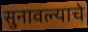
सुनावल्याचे